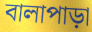
বালাপাড়া